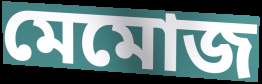
মেমোজ